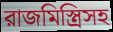
রাজমিস্ত্রিসহ